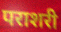
पराशरी